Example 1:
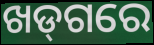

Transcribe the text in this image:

ଖଡ୍‌ଗରେ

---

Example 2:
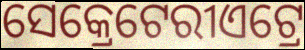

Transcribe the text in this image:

ସେକ୍ରେଟେରୀଏଟ୍ରେ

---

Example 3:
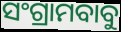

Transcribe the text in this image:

ସଂଗ୍ରାମବାବୁ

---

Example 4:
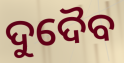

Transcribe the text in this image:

ଦୁଦୈବ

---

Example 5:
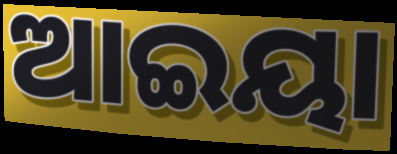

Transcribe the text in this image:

ଆଇୟା